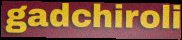
gadchiroli